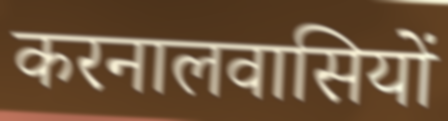
करनालवासियों